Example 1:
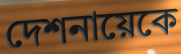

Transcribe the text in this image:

দেশনায়েকে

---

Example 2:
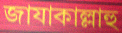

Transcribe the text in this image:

জাযাকাল্লাহু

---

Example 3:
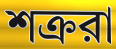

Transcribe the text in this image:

শক্ররা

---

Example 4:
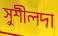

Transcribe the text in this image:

সুশীলদা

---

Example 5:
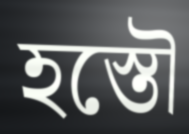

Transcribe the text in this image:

হস্তৌ